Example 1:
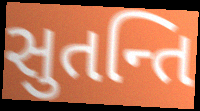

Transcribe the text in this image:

સુતન્તિ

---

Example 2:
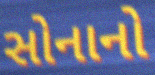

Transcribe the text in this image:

સોનાનો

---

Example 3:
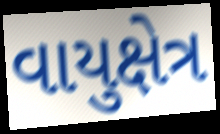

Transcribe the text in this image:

વાયુક્ષેત્ર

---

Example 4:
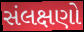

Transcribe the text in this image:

સંલક્ષણો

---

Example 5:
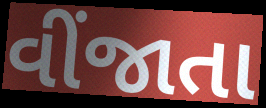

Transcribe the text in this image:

વીંજાતા